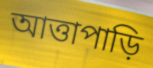
আত্তাপাড়ি